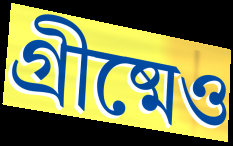
গ্রীষ্মেও